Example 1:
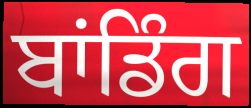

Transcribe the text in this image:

ਬਾਂਡਿੰਗ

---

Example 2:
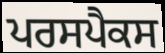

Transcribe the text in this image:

ਪਰਸਪੈਕਸ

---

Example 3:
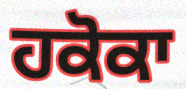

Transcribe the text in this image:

ਹਕੋਕਾ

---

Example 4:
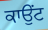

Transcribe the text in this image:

ਕਾਉਂਟ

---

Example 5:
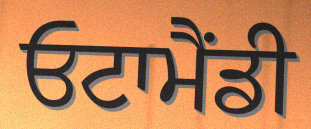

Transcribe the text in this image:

ਓਟਾਮੈਂਡੀ